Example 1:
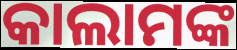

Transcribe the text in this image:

କାଲାମଙ୍କ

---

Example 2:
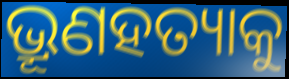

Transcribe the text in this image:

ଭ୍ରୂଣହତ୍ୟାକୁ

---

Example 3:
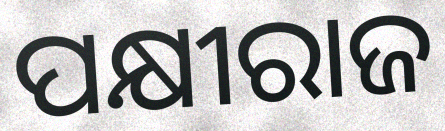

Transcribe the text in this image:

ପକ୍ଷୀରାଜ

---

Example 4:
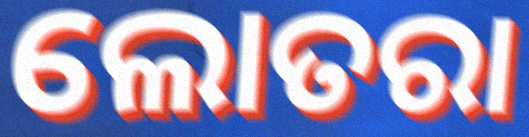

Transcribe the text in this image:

ଲୋତରା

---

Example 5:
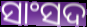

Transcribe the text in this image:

ସାଂସଦ